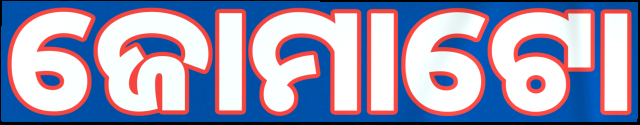
ଜୋମାଟୋ